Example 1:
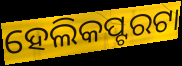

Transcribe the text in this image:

ହେଲିକପ୍ଟରଟା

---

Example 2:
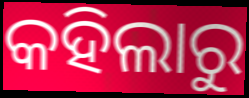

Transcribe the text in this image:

କହିଲାରୁ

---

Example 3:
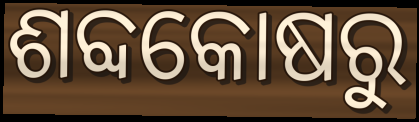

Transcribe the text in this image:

ଶବ୍ଦକୋଷରୁ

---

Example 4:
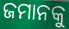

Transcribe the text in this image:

ଜମାନକୁ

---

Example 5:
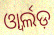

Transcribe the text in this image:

ଓ୍ୱାର୍ଲଡ଼